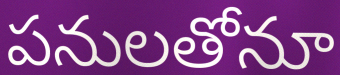
పనులతోనూ